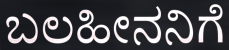
ಬಲಹೀನನಿಗೆ